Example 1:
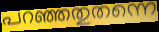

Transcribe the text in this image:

പറഞ്ഞതുതന്നെ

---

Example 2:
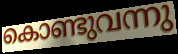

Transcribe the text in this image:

കൊണ്ടുവന്നു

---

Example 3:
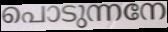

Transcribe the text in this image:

പൊടുന്നനേ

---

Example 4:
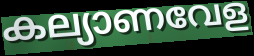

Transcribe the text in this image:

കല്യാണവേള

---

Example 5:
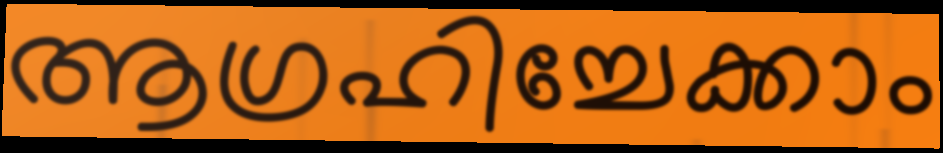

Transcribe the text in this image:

ആഗ്രഹിച്ചേക്കാം